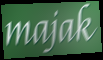
majak